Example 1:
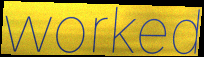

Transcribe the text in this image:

worked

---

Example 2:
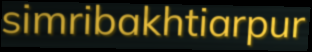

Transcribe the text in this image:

simribakhtiarpur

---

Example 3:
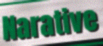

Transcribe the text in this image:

Narative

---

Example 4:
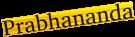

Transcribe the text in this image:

Prabhananda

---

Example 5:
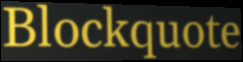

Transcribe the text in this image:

Blockquote